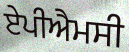
ਏਪੀਐਮਸੀ